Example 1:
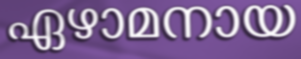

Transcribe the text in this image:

ഏഴാമനായ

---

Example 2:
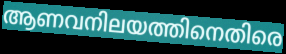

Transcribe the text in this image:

ആണവനിലയത്തിനെതിരെ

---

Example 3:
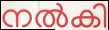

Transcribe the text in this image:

നൽകി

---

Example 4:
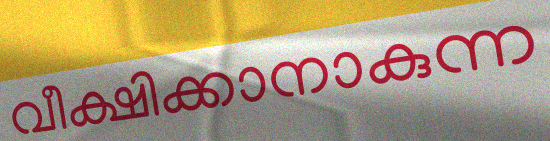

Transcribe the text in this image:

വീക്ഷിക്കാനാകുന്ന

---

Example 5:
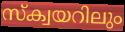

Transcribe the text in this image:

സ്ക്വയറിലും